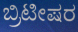
ಬ್ರಿಟೀಷರ